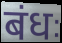
बंधः